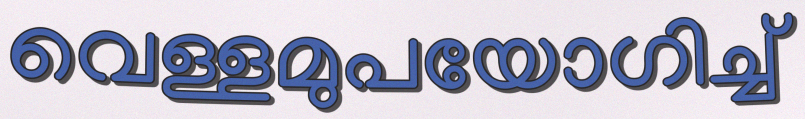
വെള്ളമുപയോഗിച്ച്